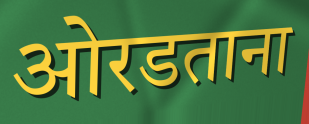
ओरडताना